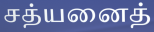
சத்யனைத்